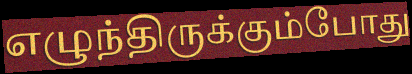
எழுந்திருக்கும்போது